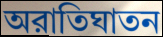
অরাতিঘাতন